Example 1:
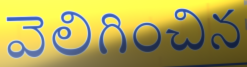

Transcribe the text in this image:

వెలిగించిన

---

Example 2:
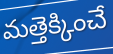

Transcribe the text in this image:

మత్తెక్కించే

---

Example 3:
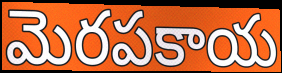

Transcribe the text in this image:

మెరపకాయ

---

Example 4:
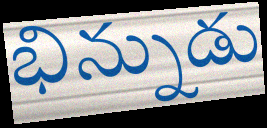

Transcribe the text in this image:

భిన్నుడు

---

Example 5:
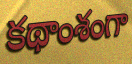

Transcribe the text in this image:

కథాంశంగా